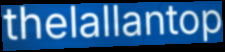
thelallantop